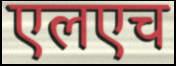
एलएच